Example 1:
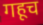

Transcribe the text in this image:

गहूच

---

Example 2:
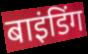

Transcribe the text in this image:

बाइंडिंग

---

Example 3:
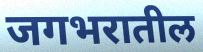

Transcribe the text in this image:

जगभरातील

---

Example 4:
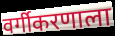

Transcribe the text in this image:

वर्गीकरणाला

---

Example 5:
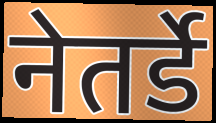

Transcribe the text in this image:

नेतर्डे